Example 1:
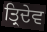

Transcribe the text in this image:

ਤ੍ਰਿਦੇਵ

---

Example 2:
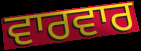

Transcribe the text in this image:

ਵਾਰਵਾਰ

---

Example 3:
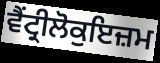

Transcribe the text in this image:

ਵੈਂਟ੍ਰੀਲੋਕੁਇਜ਼ਮ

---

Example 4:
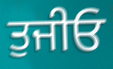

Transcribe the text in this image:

ਤੁਜੀਓ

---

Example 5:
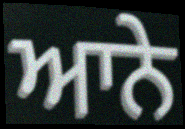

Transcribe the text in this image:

ਆਨੇ